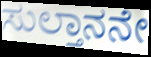
ಸುಲ್ತಾನನೇ